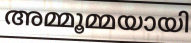
അമ്മൂമ്മയായി